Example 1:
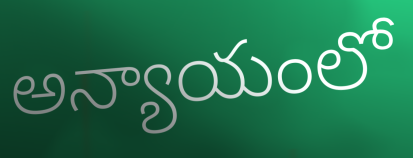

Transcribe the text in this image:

అన్యాయంలో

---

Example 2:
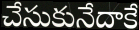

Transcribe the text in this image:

చేసుకునేదాకే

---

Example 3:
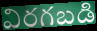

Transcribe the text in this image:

విరగబడి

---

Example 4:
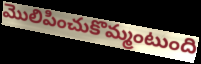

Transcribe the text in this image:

మొలిపించుకొమ్మంటుంది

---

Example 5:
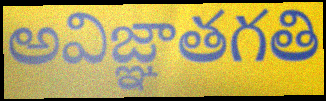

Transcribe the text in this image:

అవిజ్ఞాతగతి